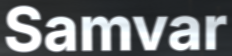
Samvar